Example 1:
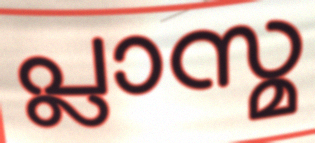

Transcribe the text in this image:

പ്ലാസ്മ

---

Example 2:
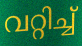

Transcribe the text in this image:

വറ്റിച്ച്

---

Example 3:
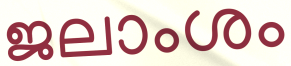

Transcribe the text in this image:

ജലാംശം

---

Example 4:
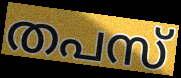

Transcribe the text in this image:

തപസ്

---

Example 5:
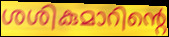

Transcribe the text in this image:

ശശികുമാറിന്റെ